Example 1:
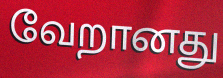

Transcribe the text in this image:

வேறானது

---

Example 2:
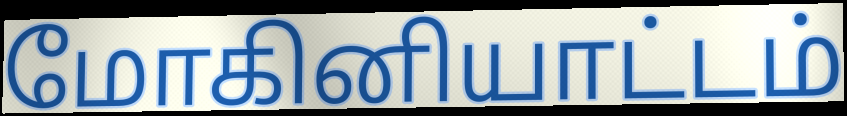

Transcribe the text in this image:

மோகினியாட்டம்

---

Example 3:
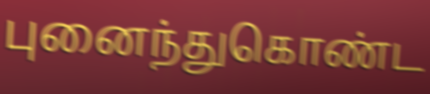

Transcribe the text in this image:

புனைந்துகொண்ட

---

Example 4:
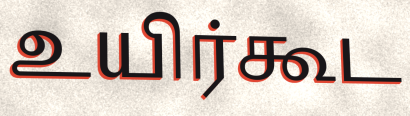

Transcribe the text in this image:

உயிர்கூட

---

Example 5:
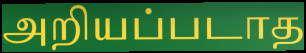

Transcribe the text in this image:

அறியப்படாத